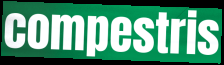
compestris